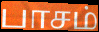
பாசம்